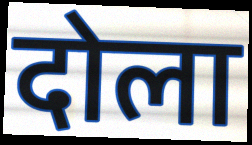
दोला